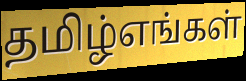
தமிழ்எங்கள்